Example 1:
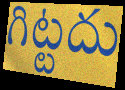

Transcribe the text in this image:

గిట్టదు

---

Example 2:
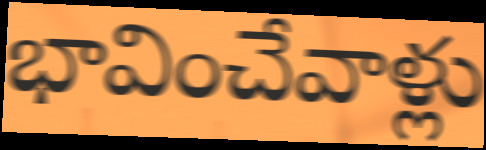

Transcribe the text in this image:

భావించేవాళ్లు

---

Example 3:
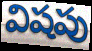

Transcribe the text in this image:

విషపు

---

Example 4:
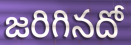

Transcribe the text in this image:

జరిగినదో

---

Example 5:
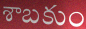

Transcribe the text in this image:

శాబకుం